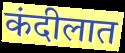
कंदीलात